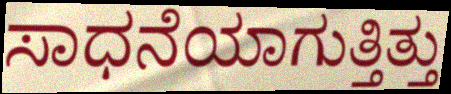
ಸಾಧನೆಯಾಗುತ್ತಿತ್ತು